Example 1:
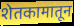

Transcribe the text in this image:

शेतकामातून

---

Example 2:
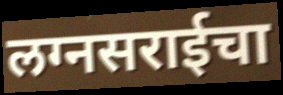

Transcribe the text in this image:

लग्नसराईचा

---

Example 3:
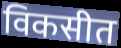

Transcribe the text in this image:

विकसीत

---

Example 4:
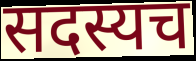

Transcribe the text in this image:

सदस्यच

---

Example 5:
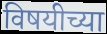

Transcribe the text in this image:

विषयीच्या